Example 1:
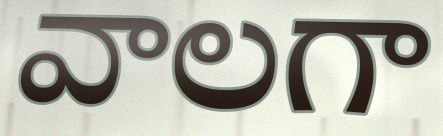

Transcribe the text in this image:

వాలగా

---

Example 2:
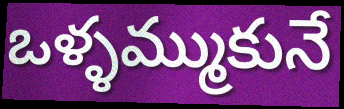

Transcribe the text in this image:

ఒళ్ళమ్ముకునే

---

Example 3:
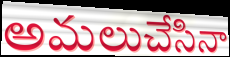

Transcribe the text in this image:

అమలుచేసినా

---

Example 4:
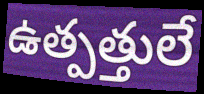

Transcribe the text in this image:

ఉత్పత్తులే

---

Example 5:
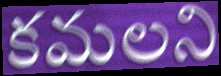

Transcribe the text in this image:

కమలని